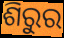
ଶିରୁର